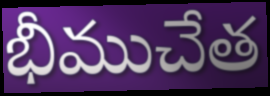
భీముచేత